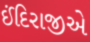
ઈંદિરાજીએ